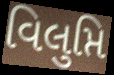
વિલુપ્તિ